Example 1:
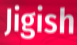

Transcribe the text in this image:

Jigish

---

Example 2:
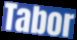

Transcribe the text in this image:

Tabor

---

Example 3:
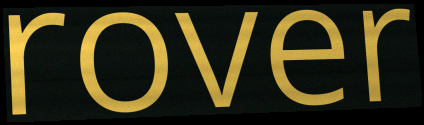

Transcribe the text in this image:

rover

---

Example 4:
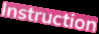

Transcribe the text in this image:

Instruction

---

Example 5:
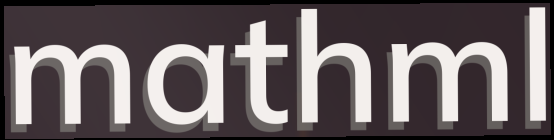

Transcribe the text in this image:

mathml